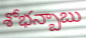
శోభన్బాబు